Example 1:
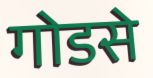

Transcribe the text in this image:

गोडसे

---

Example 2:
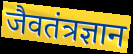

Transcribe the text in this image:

जैवतंत्रज्ञान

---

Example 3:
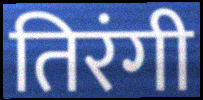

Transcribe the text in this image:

तिरंगी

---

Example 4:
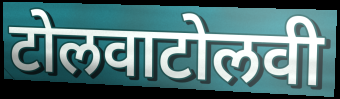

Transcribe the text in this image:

टोलवाटोलवी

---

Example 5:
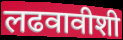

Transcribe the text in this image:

लढवावीशी